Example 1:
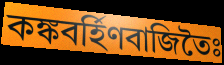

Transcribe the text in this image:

কঙ্কবর্হিণবাজিতৈঃ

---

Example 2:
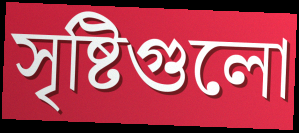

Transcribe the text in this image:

সৃষ্টিগুলো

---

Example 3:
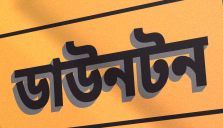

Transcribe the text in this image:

ডাউনটন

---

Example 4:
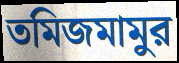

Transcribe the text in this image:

তমিজমামুর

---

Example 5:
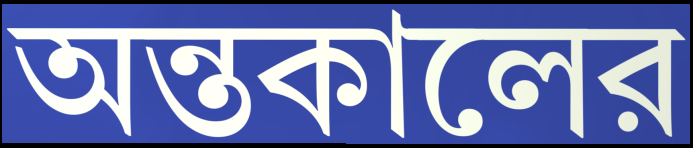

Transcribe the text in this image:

অন্তকালের